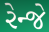
રેન્જે